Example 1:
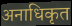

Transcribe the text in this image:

अनाधिकृत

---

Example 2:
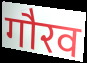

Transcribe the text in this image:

गौरव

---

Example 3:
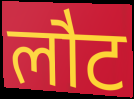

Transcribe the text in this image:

लौट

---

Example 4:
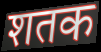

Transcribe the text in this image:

शतक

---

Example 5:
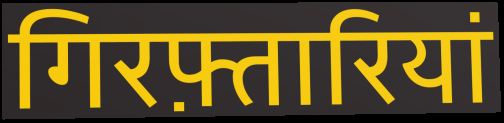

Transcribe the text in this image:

गिरफ़्तारियां